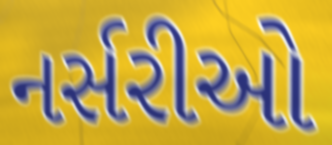
નર્સરીઓ